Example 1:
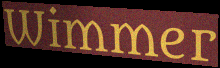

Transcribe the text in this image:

Wimmer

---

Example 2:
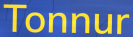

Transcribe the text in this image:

Tonnur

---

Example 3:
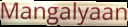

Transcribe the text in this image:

Mangalyaan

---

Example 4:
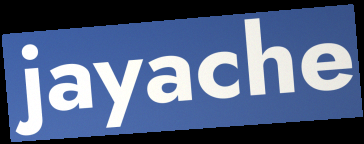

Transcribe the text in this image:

jayache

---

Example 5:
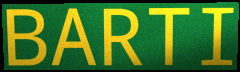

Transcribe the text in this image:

BARTI